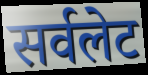
सर्वलेट